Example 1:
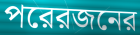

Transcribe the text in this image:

পরেরজনের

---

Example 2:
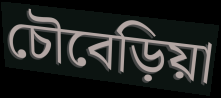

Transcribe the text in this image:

চৌবেড়িয়া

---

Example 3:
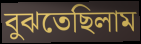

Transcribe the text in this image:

বুঝতেছিলাম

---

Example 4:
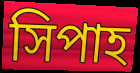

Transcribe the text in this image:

সিপাহ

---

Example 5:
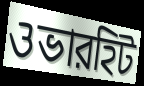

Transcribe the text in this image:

ওভারহিট